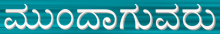
ಮುಂದಾಗುವರು